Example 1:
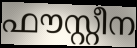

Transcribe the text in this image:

ഫൗസ്റ്റീന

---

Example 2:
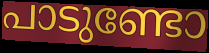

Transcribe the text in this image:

പാടുണ്ടോ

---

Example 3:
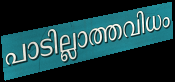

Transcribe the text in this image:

പാടില്ലാത്തവിധം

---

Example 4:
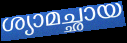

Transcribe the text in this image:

ശ്യാമച്ഛായ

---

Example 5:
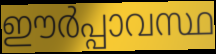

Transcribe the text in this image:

ഈർപ്പാവസ്ഥ